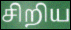
சிறிய